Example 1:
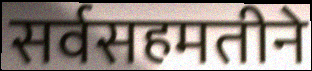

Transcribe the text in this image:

सर्वसहमतीने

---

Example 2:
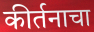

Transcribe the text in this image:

कीर्तनाचा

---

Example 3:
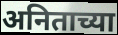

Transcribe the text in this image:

अनिताच्या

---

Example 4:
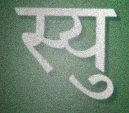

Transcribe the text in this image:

स्यु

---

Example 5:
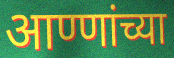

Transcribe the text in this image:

आण्णांच्या